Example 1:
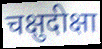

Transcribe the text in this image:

चक्षुदीक्षा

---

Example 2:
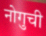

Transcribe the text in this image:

नोगुची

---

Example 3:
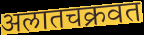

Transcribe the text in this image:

अलातचक्रवत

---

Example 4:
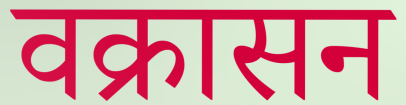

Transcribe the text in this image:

वक्रासन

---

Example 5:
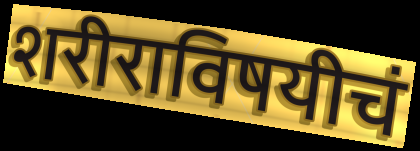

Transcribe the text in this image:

शरीराविषयीचं